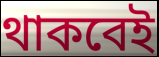
থাকবেই